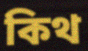
কিথ